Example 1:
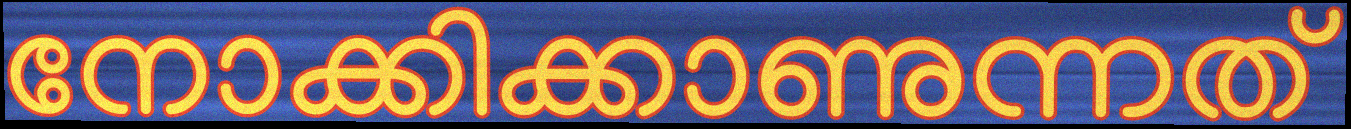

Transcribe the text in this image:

നോക്കിക്കാണുന്നത്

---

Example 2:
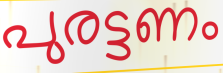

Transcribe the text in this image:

പുരട്ടണം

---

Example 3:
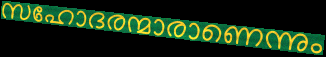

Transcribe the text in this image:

സഹോദരന്മാരാണെന്നും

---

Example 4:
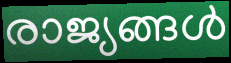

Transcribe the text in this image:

രാജ്യങ്ങൾ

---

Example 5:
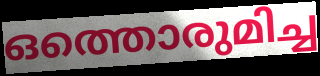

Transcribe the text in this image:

ഒത്തൊരുമിച്ച